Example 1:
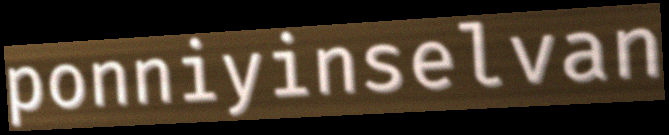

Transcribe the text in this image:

ponniyinselvan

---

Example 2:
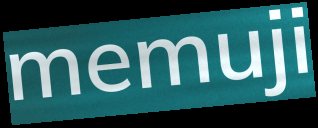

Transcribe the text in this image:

memuji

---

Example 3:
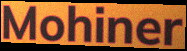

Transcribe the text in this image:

Mohiner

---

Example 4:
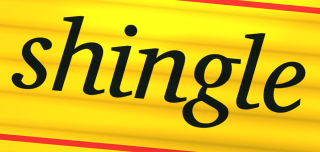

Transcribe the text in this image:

shingle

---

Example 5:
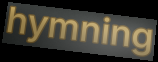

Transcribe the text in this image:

hymning